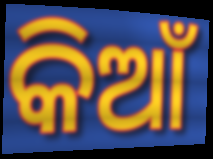
କିଆଁ